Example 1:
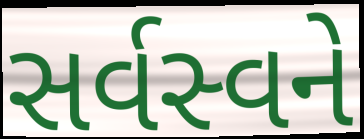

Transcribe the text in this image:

સર્વસ્વને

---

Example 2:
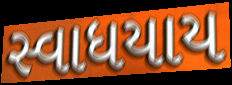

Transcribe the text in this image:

સ્વાધયાય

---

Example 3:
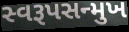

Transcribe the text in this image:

સ્વરૂપસન્મુખ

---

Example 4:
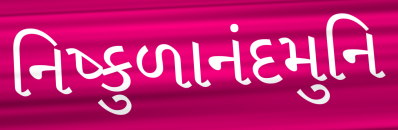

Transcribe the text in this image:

નિષ્કુળાનંદમુનિ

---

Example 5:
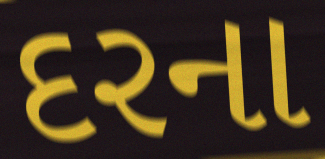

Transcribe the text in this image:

દરના